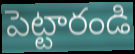
పెట్టారండి